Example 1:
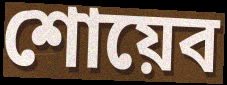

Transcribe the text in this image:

শোয়েব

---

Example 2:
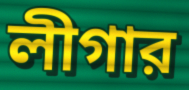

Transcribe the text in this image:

লীগার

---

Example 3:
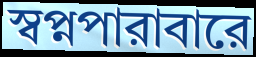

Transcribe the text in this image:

স্বপ্নপারাবারে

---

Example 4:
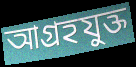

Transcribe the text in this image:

আগ্রহযুক্ত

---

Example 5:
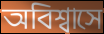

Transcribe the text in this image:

অবিশ্বাসে